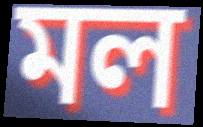
মল